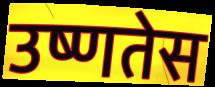
उष्णतेस